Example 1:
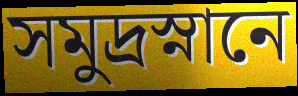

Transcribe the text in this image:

সমুদ্রস্নানে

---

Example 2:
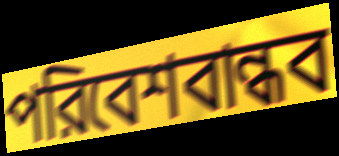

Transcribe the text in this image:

পরিবেশবান্ধব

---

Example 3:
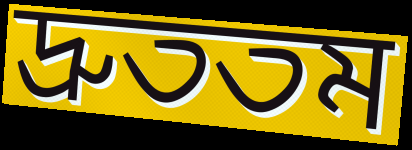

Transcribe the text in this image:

দ্রুততম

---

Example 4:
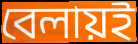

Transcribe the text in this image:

বেলায়ই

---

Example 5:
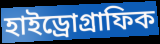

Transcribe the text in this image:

হাইড্রোগ্রাফিক